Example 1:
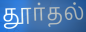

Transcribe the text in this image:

தூர்தல்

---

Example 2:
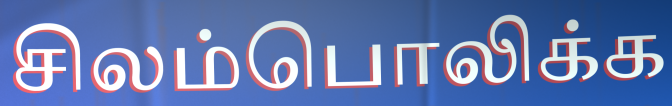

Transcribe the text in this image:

சிலம்பொலிக்க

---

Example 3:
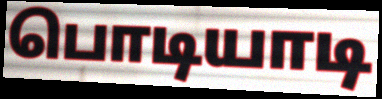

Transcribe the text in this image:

பொடியாடி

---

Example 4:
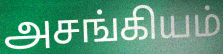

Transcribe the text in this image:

அசங்கியம்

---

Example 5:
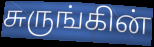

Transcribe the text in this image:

சுருங்கின்